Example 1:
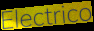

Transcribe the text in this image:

Electrico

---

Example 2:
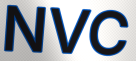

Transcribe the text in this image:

NVC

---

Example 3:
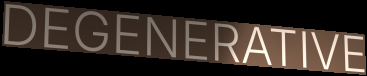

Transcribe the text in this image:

DEGENERATIVE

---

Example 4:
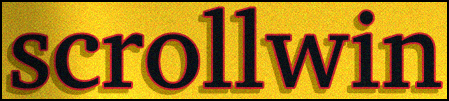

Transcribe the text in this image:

scrollwin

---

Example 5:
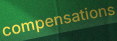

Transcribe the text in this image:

compensations